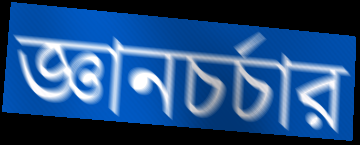
জ্ঞানচর্চার